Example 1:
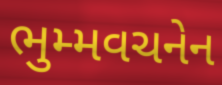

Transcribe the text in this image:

ભુમ્મવચનેન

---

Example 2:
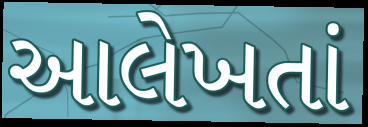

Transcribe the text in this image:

આલેખતાં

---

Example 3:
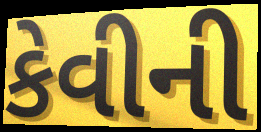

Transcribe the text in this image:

કેવીની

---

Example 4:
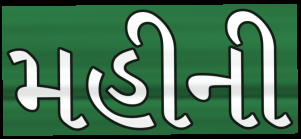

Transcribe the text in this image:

મહીની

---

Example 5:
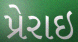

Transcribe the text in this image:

પ્રેરાઇ